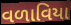
વળાવિયા